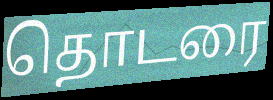
தொடரை